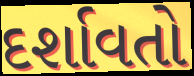
દર્શાવતો